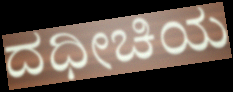
ದಧೀಚಿಯ